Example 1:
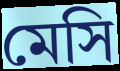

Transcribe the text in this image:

মেসি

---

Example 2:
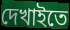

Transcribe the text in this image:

দেখাইতে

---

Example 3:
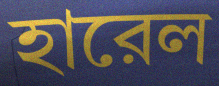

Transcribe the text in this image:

হারেল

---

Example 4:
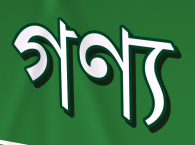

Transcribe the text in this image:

গণ্য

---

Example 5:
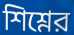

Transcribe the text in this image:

শিশ্নের